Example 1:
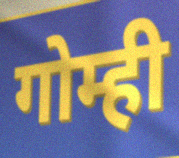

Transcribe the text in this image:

गोम्ही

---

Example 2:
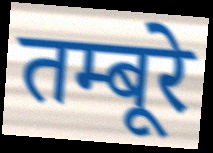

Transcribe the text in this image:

तम्बूरे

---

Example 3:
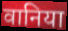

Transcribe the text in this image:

वानिया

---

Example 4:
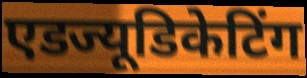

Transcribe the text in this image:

एडज्यूडिकेटिंग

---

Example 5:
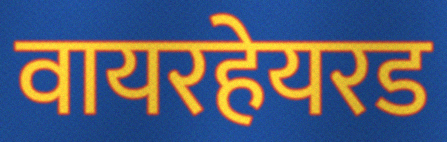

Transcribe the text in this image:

वायरहेयरड